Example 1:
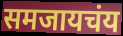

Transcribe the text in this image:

समजायचंय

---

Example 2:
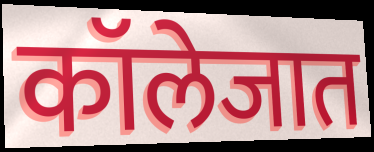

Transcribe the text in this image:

कॉलेजात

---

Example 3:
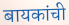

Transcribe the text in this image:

बायकांची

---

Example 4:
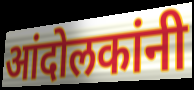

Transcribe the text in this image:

आंदोलकांनी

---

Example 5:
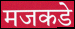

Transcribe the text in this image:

मजकडे